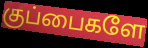
குப்பைகளே